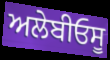
ਅਲੇਬੀਓਸੂ